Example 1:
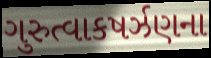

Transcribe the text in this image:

ગુરુત્વાકષર્ઝણના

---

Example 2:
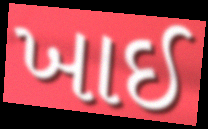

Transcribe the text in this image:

ખાઈ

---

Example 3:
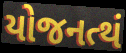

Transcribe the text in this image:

યોજનત્થં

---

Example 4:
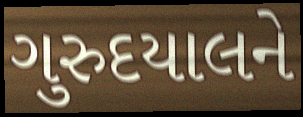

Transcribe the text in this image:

ગુરુદયાલને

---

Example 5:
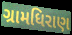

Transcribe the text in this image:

ગ્રામધિરાણ